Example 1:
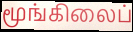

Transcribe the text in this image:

மூங்கிலைப்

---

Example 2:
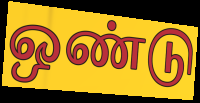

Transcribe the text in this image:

ஒண்டு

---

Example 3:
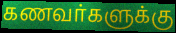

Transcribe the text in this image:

கணவர்களுக்கு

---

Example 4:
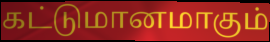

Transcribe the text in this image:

கட்டுமானமாகும்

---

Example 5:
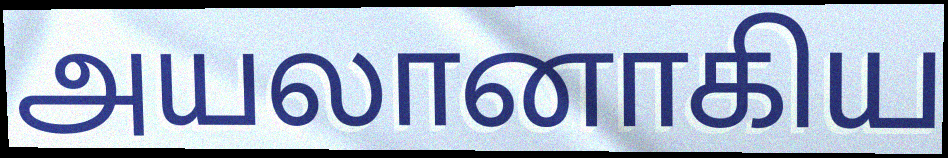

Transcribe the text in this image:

அயலானாகிய